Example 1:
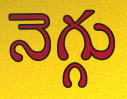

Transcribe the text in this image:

నెగ్గు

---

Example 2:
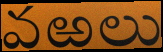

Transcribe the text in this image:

వఱలు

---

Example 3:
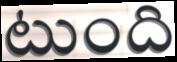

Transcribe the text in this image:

టుంది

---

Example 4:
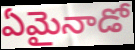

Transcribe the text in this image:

ఏమైనాడో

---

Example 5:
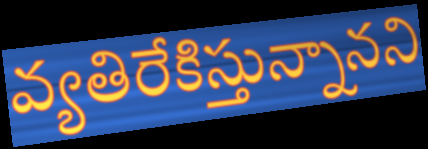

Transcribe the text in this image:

వ్యతిరేకిస్తున్నానని